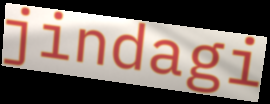
jindagi